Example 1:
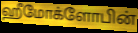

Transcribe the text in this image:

ஹீமோக்ளோபின்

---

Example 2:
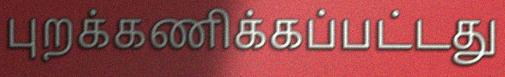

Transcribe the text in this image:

புறக்கணிக்கப்பட்டது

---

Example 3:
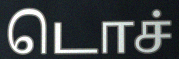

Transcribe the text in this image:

டொச்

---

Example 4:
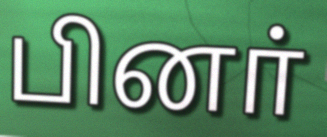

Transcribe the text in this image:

பினர்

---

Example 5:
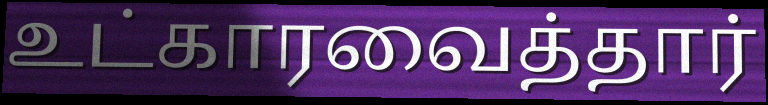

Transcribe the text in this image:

உட்காரவைத்தார்